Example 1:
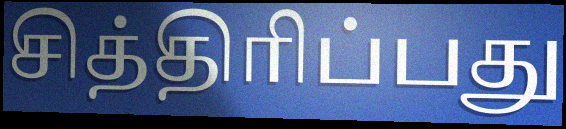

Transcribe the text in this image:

சித்திரிப்பது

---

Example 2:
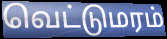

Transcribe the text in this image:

வெட்டுமரம்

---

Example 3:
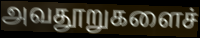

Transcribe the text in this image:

அவதூறுகளைச்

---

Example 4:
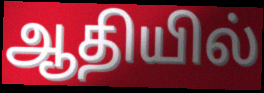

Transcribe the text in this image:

ஆதியில்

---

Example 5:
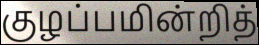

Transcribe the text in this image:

குழப்பமின்றித்